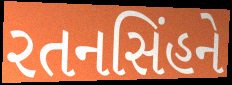
રતનસિંહને